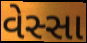
વેસ્સા